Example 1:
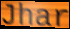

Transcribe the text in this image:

Jhar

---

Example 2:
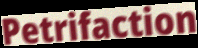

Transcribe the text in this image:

Petrifaction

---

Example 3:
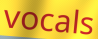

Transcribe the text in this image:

vocals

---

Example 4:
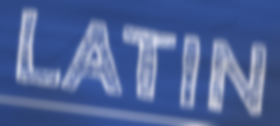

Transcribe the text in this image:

LATIN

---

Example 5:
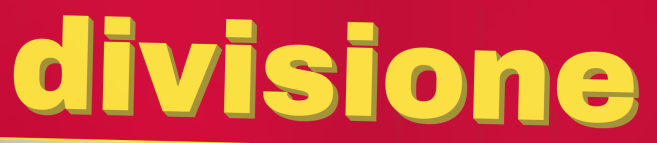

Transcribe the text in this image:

divisione